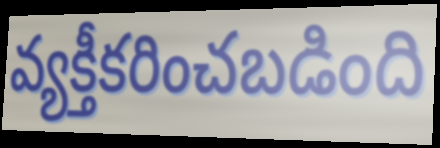
వ్యక్తీకరించబడింది